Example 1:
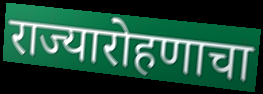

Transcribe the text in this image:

राज्यारोहणाचा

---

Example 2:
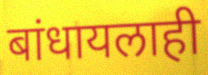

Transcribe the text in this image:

बांधायलाही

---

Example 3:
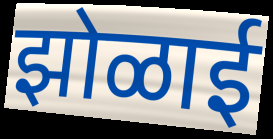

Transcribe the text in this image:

झोळाई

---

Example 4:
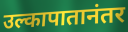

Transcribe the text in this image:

उल्कापातानंतर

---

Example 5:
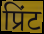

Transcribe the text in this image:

प्रिंट